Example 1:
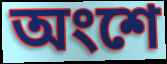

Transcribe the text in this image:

অংশে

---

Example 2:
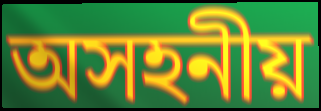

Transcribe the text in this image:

অসহনীয়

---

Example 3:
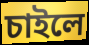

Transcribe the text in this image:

চাইলে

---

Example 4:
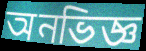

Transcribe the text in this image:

অনভিজ্ঞ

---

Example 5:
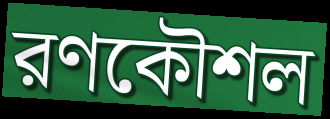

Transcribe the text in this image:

রণকৌশল